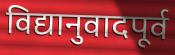
विद्यानुवादपूर्व